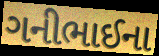
ગનીભાઈના